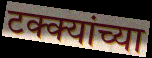
टक्क्यांच्या